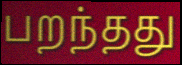
பறந்தது